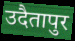
उदैतापुर